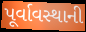
પૂર્વાવસ્થાની